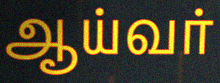
ஆய்வர்